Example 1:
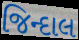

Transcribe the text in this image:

જિન્દાલ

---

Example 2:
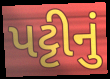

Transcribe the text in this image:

પટ્ટીનું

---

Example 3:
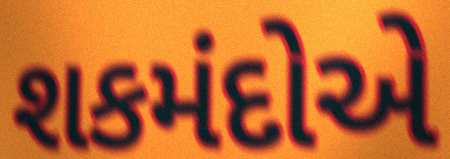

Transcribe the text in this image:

શકમંદોએ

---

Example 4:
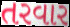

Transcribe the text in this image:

તરવાર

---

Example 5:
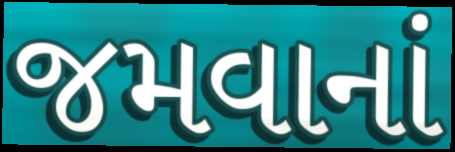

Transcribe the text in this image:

જમવાનાં